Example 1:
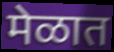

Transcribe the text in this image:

मेळात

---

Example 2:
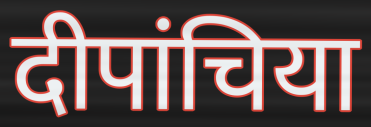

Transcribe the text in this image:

दीपांचिया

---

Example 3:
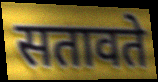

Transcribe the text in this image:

सतावते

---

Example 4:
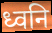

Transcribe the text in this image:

ध्वनि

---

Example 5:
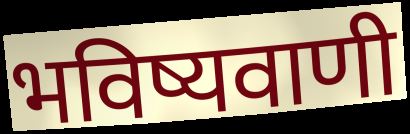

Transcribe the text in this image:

भविष्यवाणी